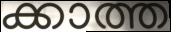
ക്കാത്ത